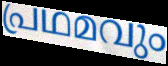
പ്രഥമവും